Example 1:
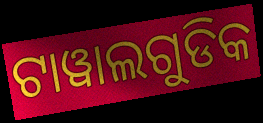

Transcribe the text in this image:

ଟାୱାଲଗୁଡିକ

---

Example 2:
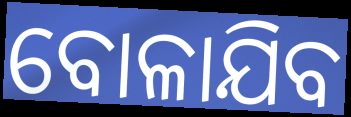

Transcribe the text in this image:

ବୋଳାଯିବ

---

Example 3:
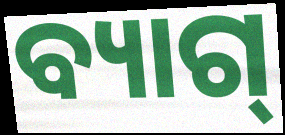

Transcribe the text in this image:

ବ୍ୟାଗ୍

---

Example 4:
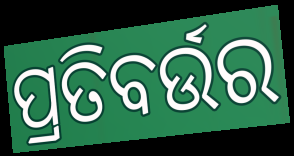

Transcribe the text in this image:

ପ୍ରତିବର୍ଉର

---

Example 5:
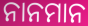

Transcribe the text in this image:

ନାନମାନ